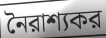
নৈরাশ্যকর